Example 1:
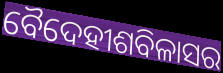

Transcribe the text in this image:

ବୈଦେହୀଶବିଳାସର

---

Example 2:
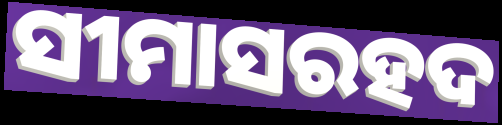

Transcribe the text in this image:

ସୀମାସରହଦ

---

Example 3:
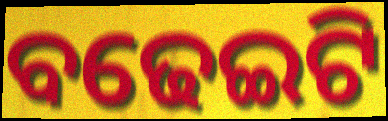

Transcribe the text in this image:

ବଢେଇଟି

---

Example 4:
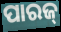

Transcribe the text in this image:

ପାରଜ୍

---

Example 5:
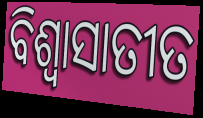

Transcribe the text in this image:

ବିଶ୍ୱାସାତୀତ